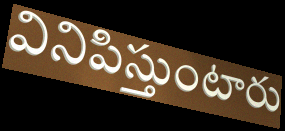
వినిపిస్తుంటారు